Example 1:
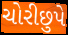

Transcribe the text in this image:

ચોરીછુપે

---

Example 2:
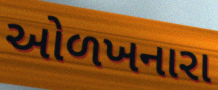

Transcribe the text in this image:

ઓળખનારા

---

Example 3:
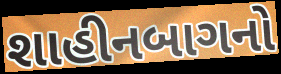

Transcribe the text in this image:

શાહીનબાગનો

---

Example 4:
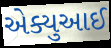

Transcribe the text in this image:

એક્યુઆઈ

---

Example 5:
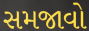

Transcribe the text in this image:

સમજાવો